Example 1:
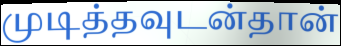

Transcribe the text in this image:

முடித்தவுடன்தான்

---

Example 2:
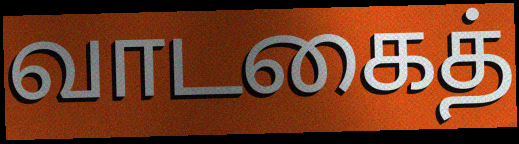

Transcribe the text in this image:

வாடகைத்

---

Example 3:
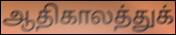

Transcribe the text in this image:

ஆதிகாலத்துக்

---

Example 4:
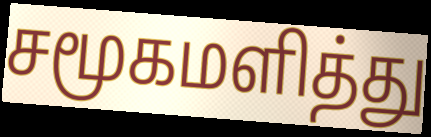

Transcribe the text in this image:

சமூகமளித்து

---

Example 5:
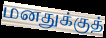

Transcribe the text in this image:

மனதுக்குத்